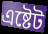
এষ্টেট